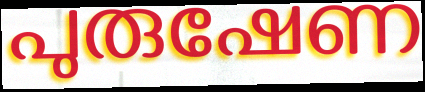
പുരുഷേണ